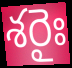
శరైః